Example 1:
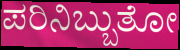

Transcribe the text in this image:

ಪರಿನಿಬ್ಬುತೋ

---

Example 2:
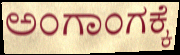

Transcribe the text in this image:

ಅಂಗಾಂಗಕ್ಕೆ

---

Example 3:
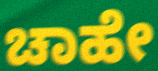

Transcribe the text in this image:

ಚಾಹೇ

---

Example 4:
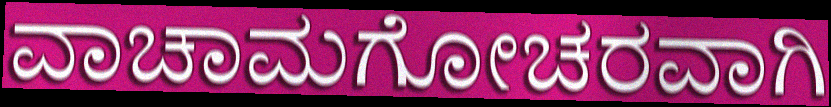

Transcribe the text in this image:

ವಾಚಾಮಗೋಚರವಾಗಿ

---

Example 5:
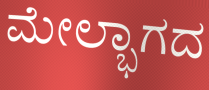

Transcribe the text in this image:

ಮೇಲ್ಭಾಗದ